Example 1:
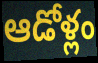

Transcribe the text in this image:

ఆడోళ్లం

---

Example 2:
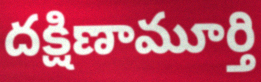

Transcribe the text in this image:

దక్షిణామూర్తి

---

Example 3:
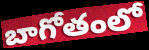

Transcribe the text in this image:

బాగోతంలో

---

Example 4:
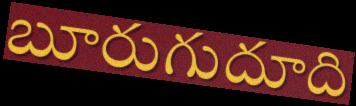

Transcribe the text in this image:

బూరుగుదూది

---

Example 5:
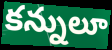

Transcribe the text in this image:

కన్నులూ